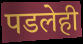
पडलेही